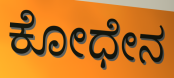
ಕೋಧೇನ